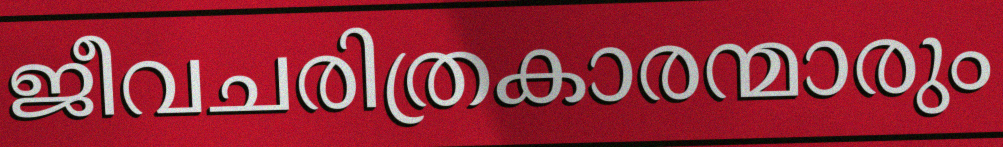
ജീവചരിത്രകാരന്മാരും